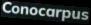
Conocarpus